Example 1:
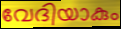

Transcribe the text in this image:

വേദിയാകും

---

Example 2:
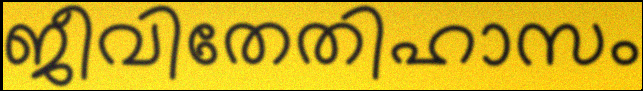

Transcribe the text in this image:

ജീവിതേതിഹാസം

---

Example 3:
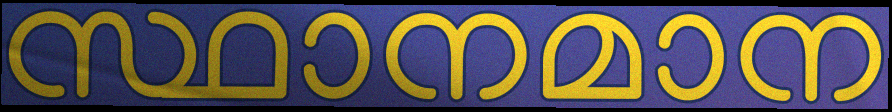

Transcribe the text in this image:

സ്ഥാനമാന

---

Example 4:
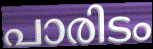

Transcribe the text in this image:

പാരിടം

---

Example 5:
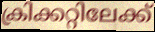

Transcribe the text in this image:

ക്രിക്കറ്റിലേക്ക്